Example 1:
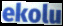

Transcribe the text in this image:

ekolu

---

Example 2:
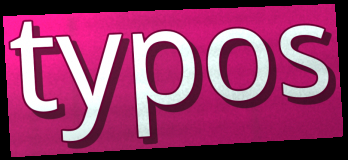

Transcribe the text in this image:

typos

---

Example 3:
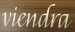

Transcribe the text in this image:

viendra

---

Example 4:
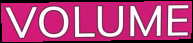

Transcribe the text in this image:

VOLUME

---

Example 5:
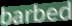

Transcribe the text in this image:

barbed